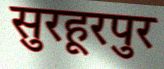
सुरहूरपुर